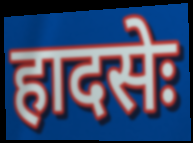
हादसेः